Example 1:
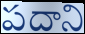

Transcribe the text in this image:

పదాని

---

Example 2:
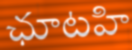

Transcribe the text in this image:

ఛూటహి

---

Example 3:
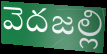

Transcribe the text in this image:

వెదజల్లి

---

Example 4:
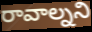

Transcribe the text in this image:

రావాల్నని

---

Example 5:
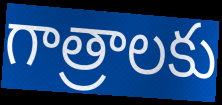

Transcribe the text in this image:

గాత్రాలకు